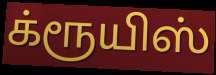
க்ரூயிஸ்